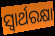
ସ୍ଵାର୍ଥରକ୍ଷା